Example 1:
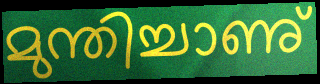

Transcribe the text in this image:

മുന്തിച്ചാണു്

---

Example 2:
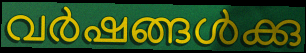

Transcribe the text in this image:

വർഷങ്ങൾക്കു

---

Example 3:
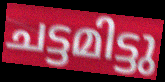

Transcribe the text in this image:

ചട്ടമിട്ടു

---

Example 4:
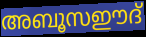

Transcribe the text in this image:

അബൂസഈദ്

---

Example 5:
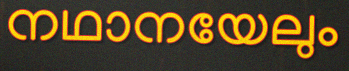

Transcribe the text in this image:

നഥാനയേലും